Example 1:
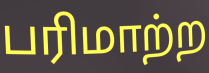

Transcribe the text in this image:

பரிமாற்ற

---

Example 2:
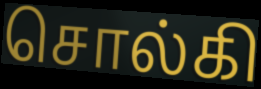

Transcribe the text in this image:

சொல்கி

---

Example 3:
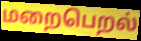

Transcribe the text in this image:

மறைபெறல்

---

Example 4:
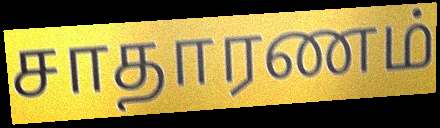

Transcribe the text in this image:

சாதாரணம்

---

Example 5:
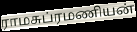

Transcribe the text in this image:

ராமசுப்ரமணியன்